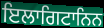
ਇਲਾਗਿਟਾਨਿਨ